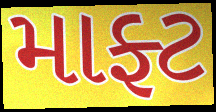
માફ્ટ